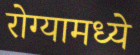
रोग्यामध्ये